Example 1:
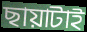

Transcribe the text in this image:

ছায়াটাই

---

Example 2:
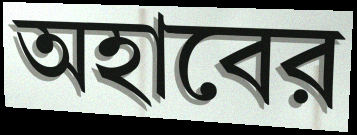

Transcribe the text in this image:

অহাবের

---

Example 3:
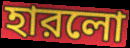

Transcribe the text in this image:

হারলো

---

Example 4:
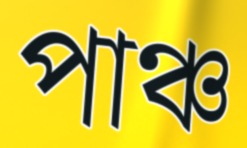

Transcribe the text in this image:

পাঞ্চ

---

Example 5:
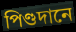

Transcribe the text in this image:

পিণ্ডদানে